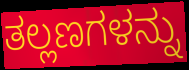
ತಲ್ಲಣಗಳನ್ನು